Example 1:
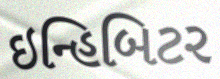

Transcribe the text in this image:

ઇન્હિબિટર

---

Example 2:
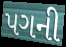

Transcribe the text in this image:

પગની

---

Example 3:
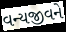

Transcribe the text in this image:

વન્યજીવને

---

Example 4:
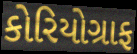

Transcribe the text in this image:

કોરિયોગ્રાફ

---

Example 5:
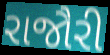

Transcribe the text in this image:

રાજૌરી